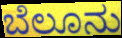
ಬೆಲೂನು